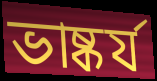
ভাষ্কর্য